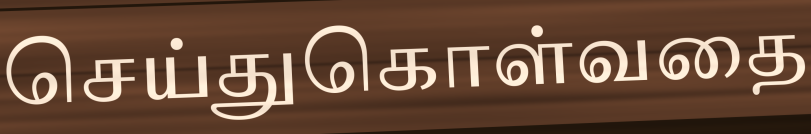
செய்துகொள்வதை